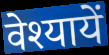
वेश्यायें